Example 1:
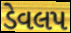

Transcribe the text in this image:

ડેવલપ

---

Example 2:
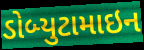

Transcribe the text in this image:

ડોબ્યુટામાઇન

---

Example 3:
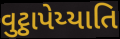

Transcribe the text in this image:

વુટ્ઠાપેય્યાતિ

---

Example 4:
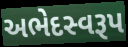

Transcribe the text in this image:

અભેદસ્વરૂપ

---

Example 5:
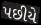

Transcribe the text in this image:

પછીયે